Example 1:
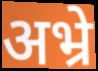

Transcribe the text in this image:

अभ्रे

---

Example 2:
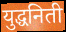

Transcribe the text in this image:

युद्धनिती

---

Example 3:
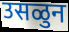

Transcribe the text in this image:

उसळुन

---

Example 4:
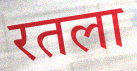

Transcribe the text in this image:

रतला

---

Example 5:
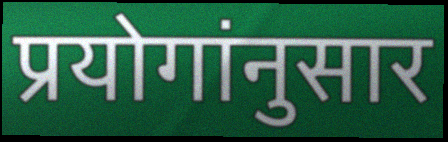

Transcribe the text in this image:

प्रयोगांनुसार